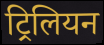
ट्रिलियन